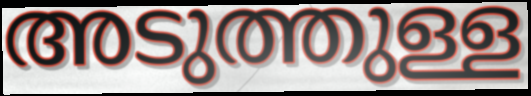
അടുത്തുള്ള